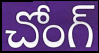
చోంగ్